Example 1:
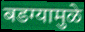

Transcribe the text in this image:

बडग्यामुळे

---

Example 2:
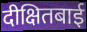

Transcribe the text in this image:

दीक्षितबाई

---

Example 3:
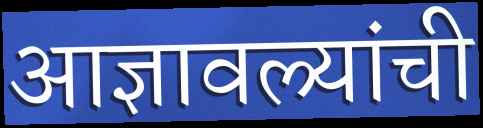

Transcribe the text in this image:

आज्ञावल्यांची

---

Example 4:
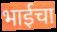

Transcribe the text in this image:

भाईचा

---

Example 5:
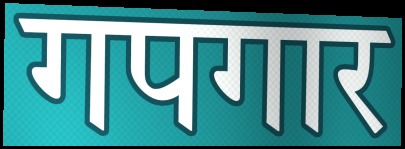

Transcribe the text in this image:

गपगार